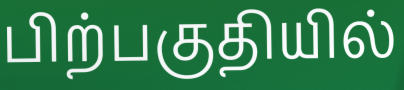
பிற்பகுதியில்